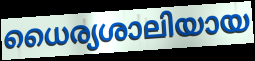
ധൈര്യശാലിയായ